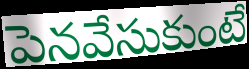
పెనవేసుకుంటే